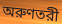
অরুণতরী